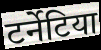
टर्नेटिया